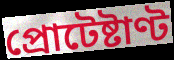
প্রোটেষ্টাণ্ট